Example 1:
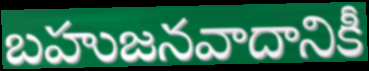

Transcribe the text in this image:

బహుజనవాదానికీ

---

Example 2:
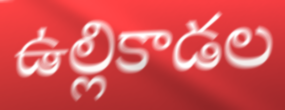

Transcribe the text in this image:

ఉల్లికాడల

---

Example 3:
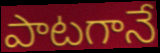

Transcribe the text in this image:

పాటగానే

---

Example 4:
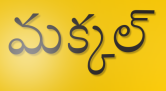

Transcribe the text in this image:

మక్కల్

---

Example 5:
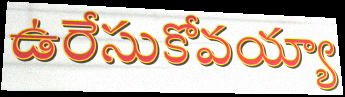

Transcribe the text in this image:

ఉరేసుకోవయ్యా